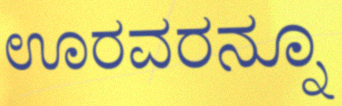
ಊರವರನ್ನೂ